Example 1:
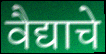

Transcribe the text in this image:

वैद्याचे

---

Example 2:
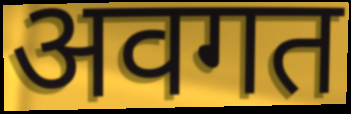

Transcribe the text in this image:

अवगत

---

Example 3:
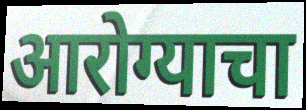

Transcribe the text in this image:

आरोग्याचा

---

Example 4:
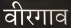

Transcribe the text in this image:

वीरगाव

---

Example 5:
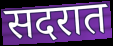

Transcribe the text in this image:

सदरात